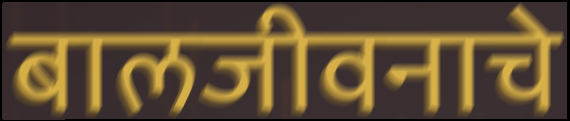
बालजीवनाचे